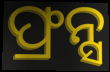
ଫ୍ରନ୍ସ